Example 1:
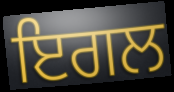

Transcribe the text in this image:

ਇਗਲ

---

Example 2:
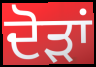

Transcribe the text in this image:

ਦੋੜਾਂ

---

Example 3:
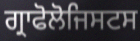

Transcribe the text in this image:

ਗ੍ਰਾਫੋਲੋਜਿਸਟਸ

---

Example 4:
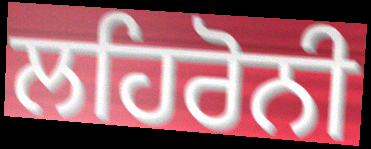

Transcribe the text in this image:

ਲਹਿਰੋਨੀ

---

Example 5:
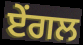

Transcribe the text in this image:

ਏਂਗਲ